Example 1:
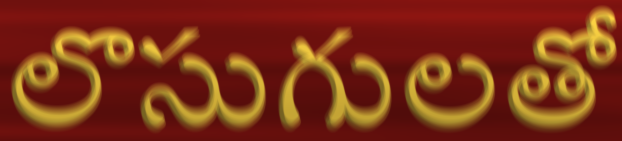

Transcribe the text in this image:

లొసుగులతో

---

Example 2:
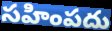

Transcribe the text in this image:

సహింపదు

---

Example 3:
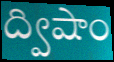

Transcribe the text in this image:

ద్విషాం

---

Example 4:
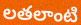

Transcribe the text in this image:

లతలాంటి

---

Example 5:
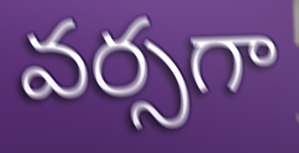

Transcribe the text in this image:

వర్సగా